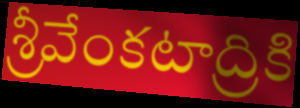
శ్రీవేంకటాద్రికి